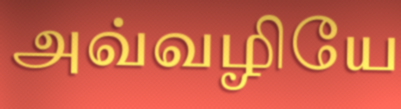
அவ்வழியே